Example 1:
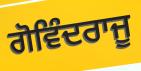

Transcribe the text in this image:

ਗੋਵਿੰਦਰਾਜੂ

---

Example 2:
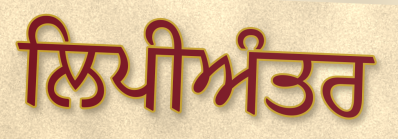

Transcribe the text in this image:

ਲਿਪੀਅੰਤਰ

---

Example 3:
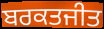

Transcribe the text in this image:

ਬਰਕਤਜੀਤ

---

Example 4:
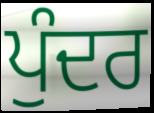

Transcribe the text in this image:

ਪੁੰਦਰ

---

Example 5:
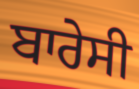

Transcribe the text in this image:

ਬਾਰੇਸੀ